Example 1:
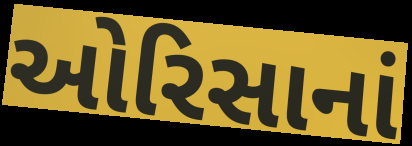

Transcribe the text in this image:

ઓરિસાનાં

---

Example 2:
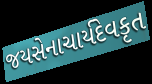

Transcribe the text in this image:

જયસેનાચાર્યદેવકૃત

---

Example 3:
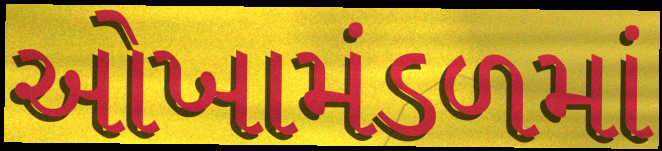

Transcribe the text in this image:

ઓખામંડળમાં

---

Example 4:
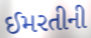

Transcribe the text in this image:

ઈમરતીની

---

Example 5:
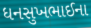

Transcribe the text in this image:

ધનસુખભાઈના